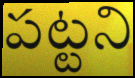
పట్టని